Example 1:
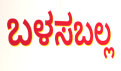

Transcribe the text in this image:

ಬಳಸಬಲ್ಲ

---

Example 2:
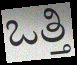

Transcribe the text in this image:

ಒತ್ತಿ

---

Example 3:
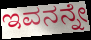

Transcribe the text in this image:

ಇವನನ್ನೇ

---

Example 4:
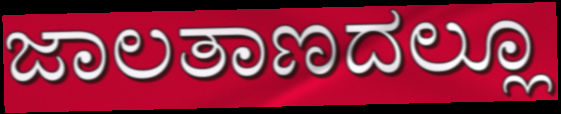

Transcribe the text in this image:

ಜಾಲತಾಣದಲ್ಲೂ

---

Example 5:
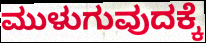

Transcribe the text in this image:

ಮುಳುಗುವುದಕ್ಕೆ